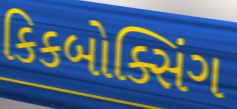
કિકબોક્સિંગ